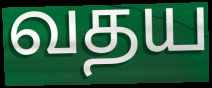
வதய